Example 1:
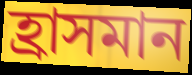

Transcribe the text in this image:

হ্ৰাসমান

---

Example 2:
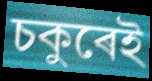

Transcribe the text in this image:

চকুৰেই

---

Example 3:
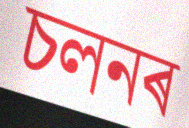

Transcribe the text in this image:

চলনৰ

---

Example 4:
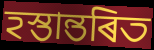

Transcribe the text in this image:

হস্তান্তৰিত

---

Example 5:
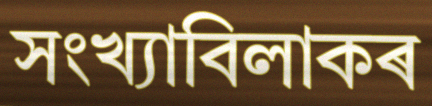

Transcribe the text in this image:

সংখ্যাবিলাকৰ